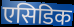
एसिडिक